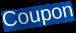
Coupon